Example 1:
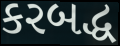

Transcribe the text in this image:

કરબદ્ધ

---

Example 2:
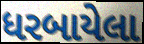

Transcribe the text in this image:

ધરબાયેલા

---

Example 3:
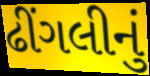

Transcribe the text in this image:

ઢીંગલીનું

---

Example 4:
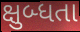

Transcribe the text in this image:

ક્ષુબ્ધતા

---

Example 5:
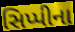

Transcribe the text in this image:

સિપ્પીના